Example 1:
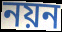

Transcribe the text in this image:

নয়ন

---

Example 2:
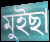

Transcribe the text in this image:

মুইছা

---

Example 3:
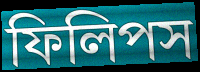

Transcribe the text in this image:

ফিলিপস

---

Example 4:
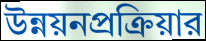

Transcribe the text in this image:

উন্নয়নপ্রক্রিয়ার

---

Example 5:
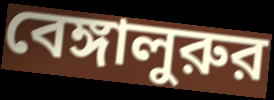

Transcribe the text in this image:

বেঙ্গালুরুর